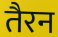
तैरन